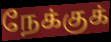
நேக்குக்